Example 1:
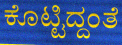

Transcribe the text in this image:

ಕೊಟ್ಟಿದ್ದಂತೆ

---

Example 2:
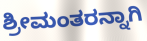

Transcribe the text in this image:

ಶ್ರೀಮಂತರನ್ನಾಗಿ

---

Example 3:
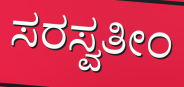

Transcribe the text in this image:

ಸರಸ್ವತೀಂ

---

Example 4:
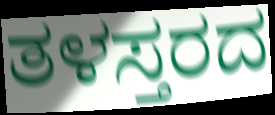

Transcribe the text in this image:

ತಳಸ್ತರದ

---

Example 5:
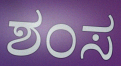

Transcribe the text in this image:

ಶಂಸ